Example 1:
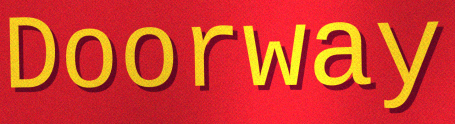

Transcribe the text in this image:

Doorway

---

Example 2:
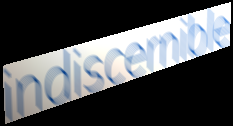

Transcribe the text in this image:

indiscernible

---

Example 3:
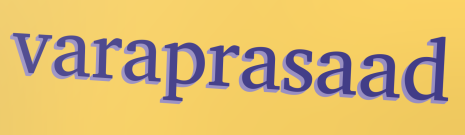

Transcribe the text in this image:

varaprasaad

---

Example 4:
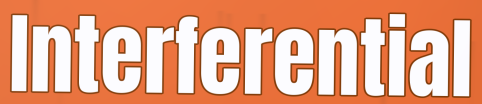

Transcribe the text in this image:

Interferential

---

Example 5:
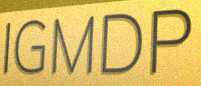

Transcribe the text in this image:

IGMDP